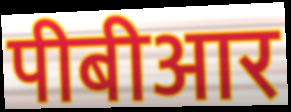
पीबीआर